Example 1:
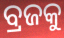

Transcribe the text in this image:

ବ୍ରଜକୁ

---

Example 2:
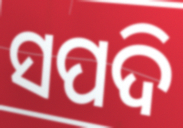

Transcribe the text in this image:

ସପଦି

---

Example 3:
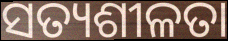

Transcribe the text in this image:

ସତ୍ୟଶୀଳତା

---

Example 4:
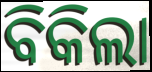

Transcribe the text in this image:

ବିକିଲା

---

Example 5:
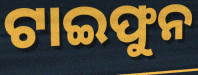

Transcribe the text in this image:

ଟାଇଫୁନ